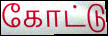
கோட்டு